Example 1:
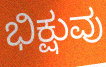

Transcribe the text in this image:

ಭಿಕ್ಷುವು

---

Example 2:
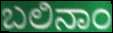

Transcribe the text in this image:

ಬಲಿನಾಂ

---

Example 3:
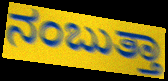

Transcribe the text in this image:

ನಂಬುತ್ತಾ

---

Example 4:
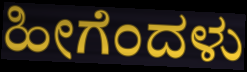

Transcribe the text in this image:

ಹೀಗೆಂದಳು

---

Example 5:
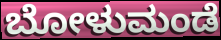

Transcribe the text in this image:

ಬೋಳುಮಂಡೆ